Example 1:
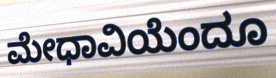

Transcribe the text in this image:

ಮೇಧಾವಿಯೆಂದೂ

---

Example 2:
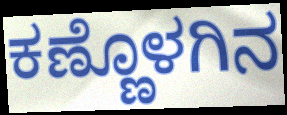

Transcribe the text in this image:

ಕಣ್ಣೊಳಗಿನ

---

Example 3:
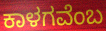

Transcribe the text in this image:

ಕಾಳಗವೆಂಬ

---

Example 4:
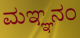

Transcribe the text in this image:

ಮಞ್ಞನಂ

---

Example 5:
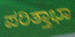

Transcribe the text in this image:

ಪರಿತ್ತಾಭಾ